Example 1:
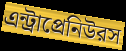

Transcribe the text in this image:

এন্ট্রাপ্রেনিউরস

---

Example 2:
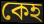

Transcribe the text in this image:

কেহ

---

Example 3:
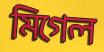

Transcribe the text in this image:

মিগেল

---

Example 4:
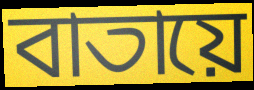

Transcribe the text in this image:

বাতায়ে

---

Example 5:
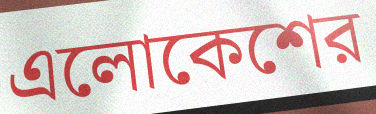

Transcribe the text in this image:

এলোকেশের